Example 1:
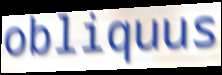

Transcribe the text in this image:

obliquus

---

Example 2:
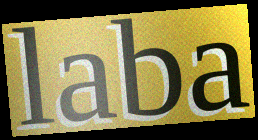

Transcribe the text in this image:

laba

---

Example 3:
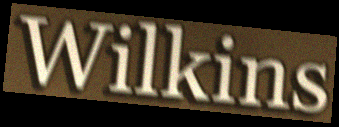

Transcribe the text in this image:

Wilkins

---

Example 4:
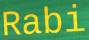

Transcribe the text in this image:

Rabi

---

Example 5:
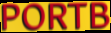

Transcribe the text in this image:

PORTB